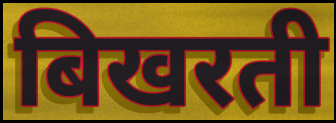
बिखरती